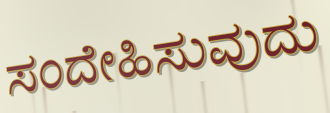
ಸಂದೇಹಿಸುವುದು